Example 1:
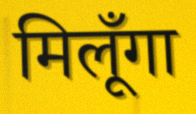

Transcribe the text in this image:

मिलूँगा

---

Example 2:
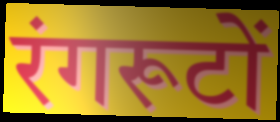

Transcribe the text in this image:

रंगरूटों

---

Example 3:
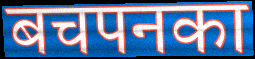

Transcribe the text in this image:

बचपनका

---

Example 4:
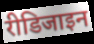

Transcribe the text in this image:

रीडिजाइन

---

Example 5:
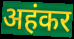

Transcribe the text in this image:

अहंकर